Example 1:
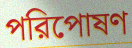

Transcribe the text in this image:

পরিপোষণ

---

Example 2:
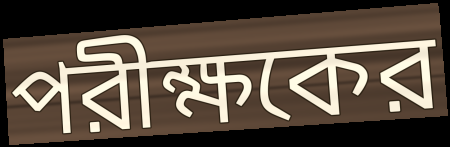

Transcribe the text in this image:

পরীক্ষকের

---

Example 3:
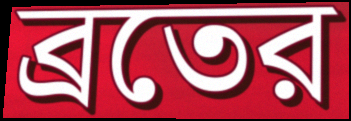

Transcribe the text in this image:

ব্রতের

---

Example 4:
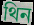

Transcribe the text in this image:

থিন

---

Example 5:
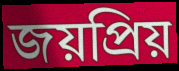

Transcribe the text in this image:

জয়প্রিয়